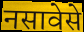
नसावेसे